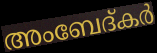
അംബേദ്കർ